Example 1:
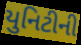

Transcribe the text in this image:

યુનિટીની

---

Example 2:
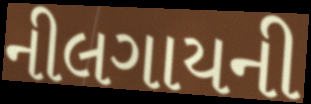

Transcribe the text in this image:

નીલગાયની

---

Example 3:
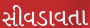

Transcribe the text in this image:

સીવડાવતા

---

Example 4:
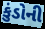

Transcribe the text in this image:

કુંડોની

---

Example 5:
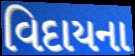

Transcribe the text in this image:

વિદાયના